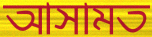
আসামত